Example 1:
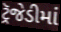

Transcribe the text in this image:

ટ્રૅજેડીમાં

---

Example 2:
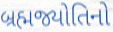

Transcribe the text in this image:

બ્રહ્મજ્યોતિનો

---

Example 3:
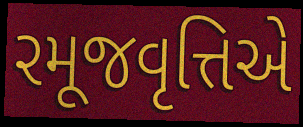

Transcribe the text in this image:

રમૂજવૃત્તિએ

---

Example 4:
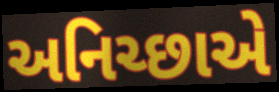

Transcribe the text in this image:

અનિચ્છાએ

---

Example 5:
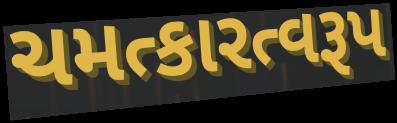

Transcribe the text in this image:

ચમત્કારત્વરૂપ